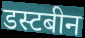
डस्टबीन